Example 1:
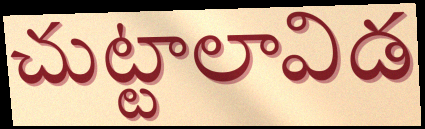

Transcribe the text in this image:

చుట్టాలావిడ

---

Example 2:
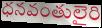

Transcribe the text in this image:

ధనవంతులైరి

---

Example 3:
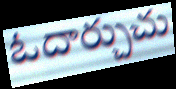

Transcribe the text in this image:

ఓదార్చుచు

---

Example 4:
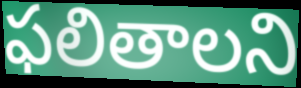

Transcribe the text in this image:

ఫలితాలని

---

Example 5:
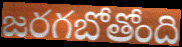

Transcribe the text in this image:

జరగబోతోంది